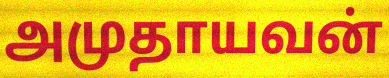
அமுதாயவன்